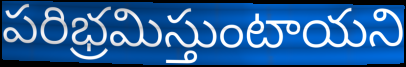
పరిభ్రమిస్తుంటాయని